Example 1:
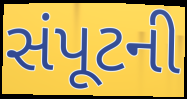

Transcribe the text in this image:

સંપૂટની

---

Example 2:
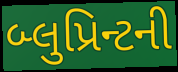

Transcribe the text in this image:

બ્લુપ્રિન્ટની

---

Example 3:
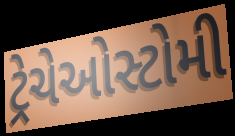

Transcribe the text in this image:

ટ્રેચેઓસ્ટોમી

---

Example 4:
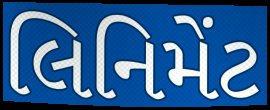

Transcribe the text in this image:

લિનિમેંટ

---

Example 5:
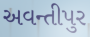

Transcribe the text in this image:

અવન્તીપુર